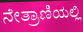
ನೇತ್ರಾಣಿಯಲ್ಲಿ